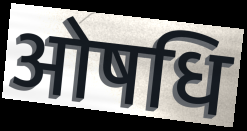
ओषधि